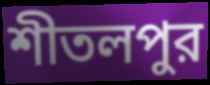
শীতলপুর